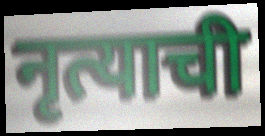
नृत्याची